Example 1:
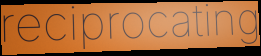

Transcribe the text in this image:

reciprocating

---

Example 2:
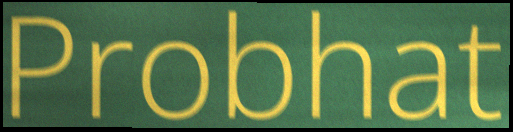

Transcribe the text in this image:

Probhat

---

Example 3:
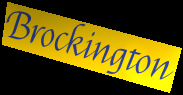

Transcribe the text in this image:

Brockington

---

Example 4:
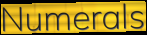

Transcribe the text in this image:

Numerals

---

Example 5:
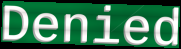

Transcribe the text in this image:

Denied